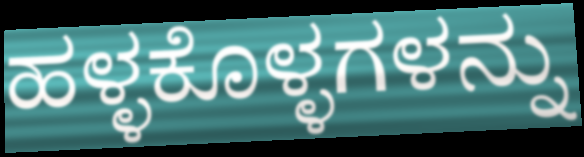
ಹಳ್ಳಕೊಳ್ಳಗಳನ್ನು